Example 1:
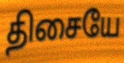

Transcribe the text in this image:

திசையே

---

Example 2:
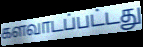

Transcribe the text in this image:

களவாடப்பட்டது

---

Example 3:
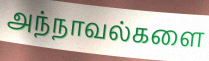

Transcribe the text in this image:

அந்நாவல்களை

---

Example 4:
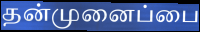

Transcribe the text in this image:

தன்முனைப்பை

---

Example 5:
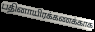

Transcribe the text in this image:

பதினாயிரக்கணக்காக